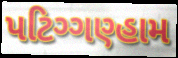
પટિગ્ગણ્હામ